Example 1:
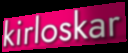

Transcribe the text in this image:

kirloskar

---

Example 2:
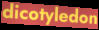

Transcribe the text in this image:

dicotyledon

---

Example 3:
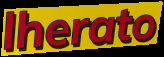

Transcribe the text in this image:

lherato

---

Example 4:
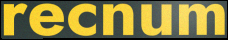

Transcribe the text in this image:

recnum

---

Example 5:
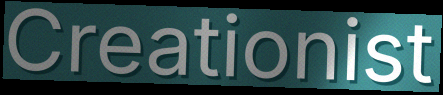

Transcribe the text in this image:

Creationist